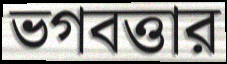
ভগবত্তার